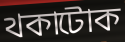
থকাটোক